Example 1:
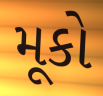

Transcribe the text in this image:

મૂકો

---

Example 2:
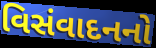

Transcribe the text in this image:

વિસંવાદનનો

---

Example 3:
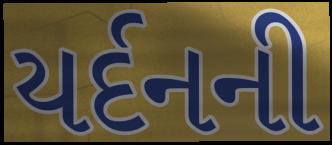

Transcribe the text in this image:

યર્દનની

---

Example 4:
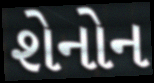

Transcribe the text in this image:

શેનોન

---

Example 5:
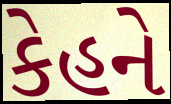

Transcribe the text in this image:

કેહને